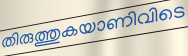
തിരുത്തുകയാണിവിടെ